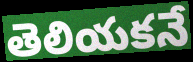
తెలియకనే